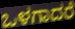
ಒಳಗಾದರೆ